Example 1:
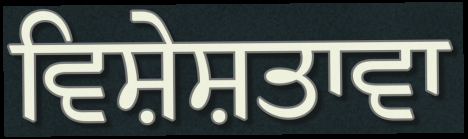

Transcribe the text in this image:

ਵਿਸ਼ੇਸ਼ਤਾਵਾ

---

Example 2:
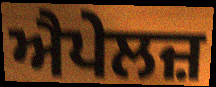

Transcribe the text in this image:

ਐਪੇਲਜ਼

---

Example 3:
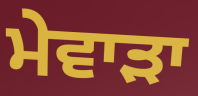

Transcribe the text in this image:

ਮੇਵਾੜਾ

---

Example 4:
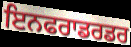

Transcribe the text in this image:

ਇਨਫਰਾਡਰਡਰ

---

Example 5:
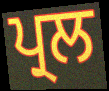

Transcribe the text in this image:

ਪ੍ਰਲ